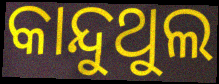
କାନ୍ଦୁଥୁଲ